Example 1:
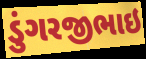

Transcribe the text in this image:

ડુંગરજીભાઇ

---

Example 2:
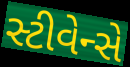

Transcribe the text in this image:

સ્ટીવેન્સે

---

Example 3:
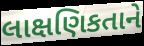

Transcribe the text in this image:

લાક્ષણિકતાને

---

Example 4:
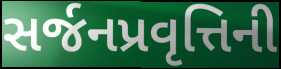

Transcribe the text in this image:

સર્જનપ્રવૃત્તિની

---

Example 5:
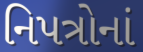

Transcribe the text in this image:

નિપત્રોનાં